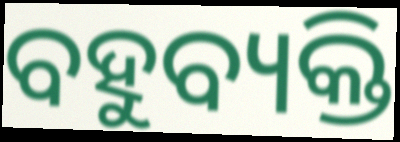
ବହୁବ୍ୟକ୍ତି